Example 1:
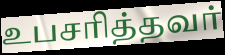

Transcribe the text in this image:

உபசரித்தவர்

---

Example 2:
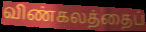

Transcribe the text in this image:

விண்கலத்தைப்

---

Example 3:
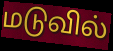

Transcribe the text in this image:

மடுவில்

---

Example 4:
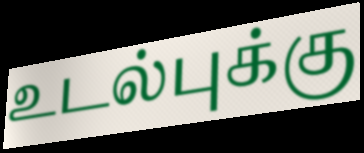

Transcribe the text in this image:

உடல்புக்கு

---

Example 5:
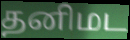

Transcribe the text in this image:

தனிமட